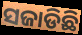
ସଜାଡିଛି